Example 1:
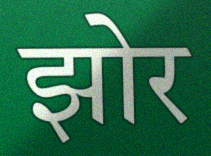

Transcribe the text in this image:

झोर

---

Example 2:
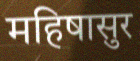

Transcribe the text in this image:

महिषासुर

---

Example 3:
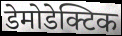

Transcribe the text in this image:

डेमोडेक्टिक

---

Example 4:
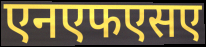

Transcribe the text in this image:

एनएफएसए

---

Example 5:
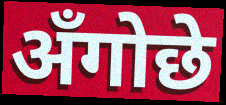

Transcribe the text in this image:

अँगोछे